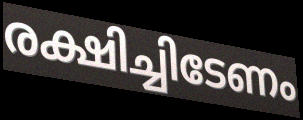
രക്ഷിച്ചിടേണം